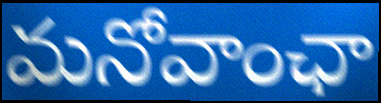
మనోవాంఛా